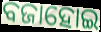
ବଜାହୋଇ